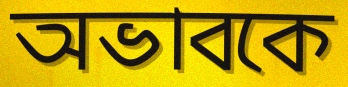
অভাবকে